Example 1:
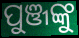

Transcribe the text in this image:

ପୁଞ୍ଜଙ୍କୁ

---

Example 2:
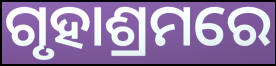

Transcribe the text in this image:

ଗୃହାଶ୍ରମରେ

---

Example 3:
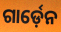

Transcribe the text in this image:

ଗାର୍ଡ଼େନ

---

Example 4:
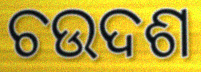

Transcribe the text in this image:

ଚଉଦଶ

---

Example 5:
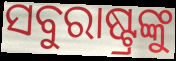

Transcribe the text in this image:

ସବୁରାଷ୍ଟ୍ରଙ୍କୁ